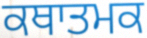
ਕਥਾਤਮਕ